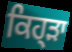
ਕਿਹ੍ੜਾ